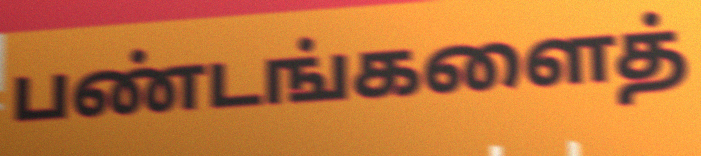
பண்டங்களைத்